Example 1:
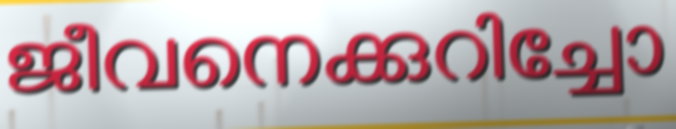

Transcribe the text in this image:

ജീവനെക്കുറിച്ചോ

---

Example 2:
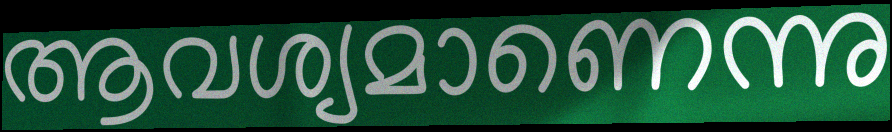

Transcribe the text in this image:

ആവശ്യമാണെന്നു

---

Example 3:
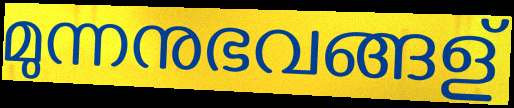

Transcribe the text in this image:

മുന്നനുഭവങ്ങള്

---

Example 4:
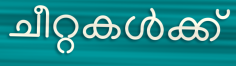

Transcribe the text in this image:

ചീറ്റകൾക്ക്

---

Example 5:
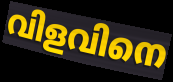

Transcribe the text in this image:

വിളവിനെ